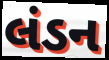
લંડન